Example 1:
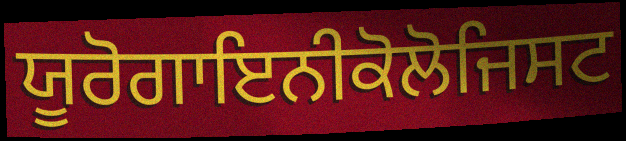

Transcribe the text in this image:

ਯੂਰੋਗਾਇਨੀਕੋਲੋਜਿਸਟ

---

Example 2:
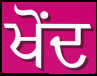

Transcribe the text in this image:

ਖੋਂਦ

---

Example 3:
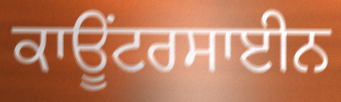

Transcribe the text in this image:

ਕਾਊਂਟਰਸਾਈਨ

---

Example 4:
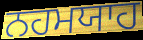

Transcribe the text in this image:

ਨਹਮਯਾਹ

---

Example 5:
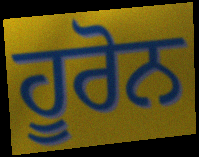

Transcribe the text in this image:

ਹੂਰੋਨ